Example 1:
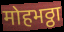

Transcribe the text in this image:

मोहभठ्ठा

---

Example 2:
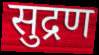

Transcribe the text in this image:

सुद्रण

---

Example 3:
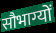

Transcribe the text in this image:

सौभाग्यों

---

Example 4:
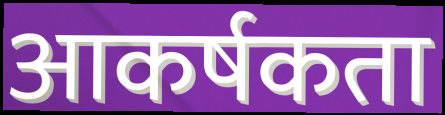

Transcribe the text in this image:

आकर्षकता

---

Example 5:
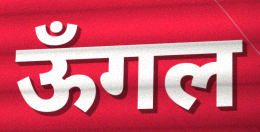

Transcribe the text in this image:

ऊँगल